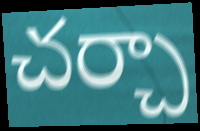
చర్చా